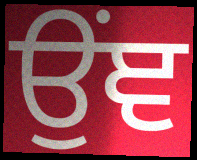
ਉਂਞ